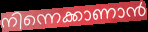
നിന്നെക്കാണാൻ